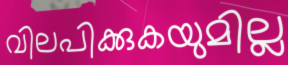
വിലപിക്കുകയുമില്ല